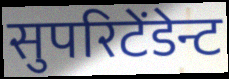
सुपरिटेंडेन्ट